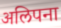
अलिपना